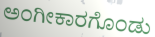
ಅಂಗೀಕಾರಗೊಂಡು